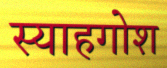
स्याहगोश